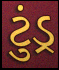
ટુંડ્ર